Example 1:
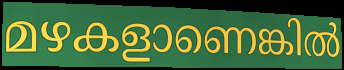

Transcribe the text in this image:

മഴകളാണെങ്കിൽ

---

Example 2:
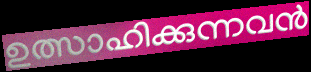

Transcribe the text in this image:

ഉത്സാഹിക്കുന്നവൻ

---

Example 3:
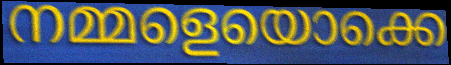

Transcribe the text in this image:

നമ്മളെയൊക്കെ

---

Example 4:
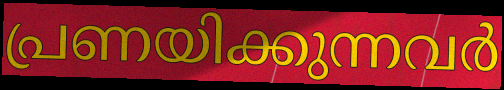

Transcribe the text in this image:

പ്രണയിക്കുന്നവർ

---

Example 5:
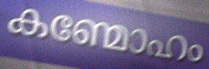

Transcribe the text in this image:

കണ്മോഹം